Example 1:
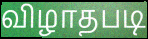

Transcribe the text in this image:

விழாதபடி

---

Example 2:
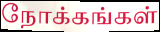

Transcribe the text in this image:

நோக்கங்கள்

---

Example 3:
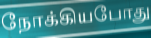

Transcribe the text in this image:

நோக்கியபோது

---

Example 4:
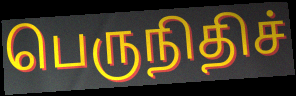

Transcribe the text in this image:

பெருநிதிச்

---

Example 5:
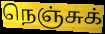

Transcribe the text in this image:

நெஞ்சுக்